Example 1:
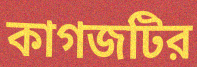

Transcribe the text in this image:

কাগজটির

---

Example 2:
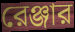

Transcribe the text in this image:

রেঞ্জার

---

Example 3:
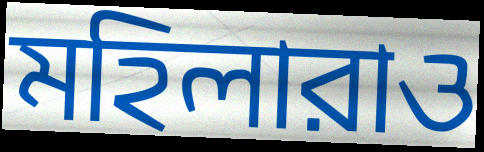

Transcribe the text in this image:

মহিলারাও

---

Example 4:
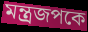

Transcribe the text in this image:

মন্ত্রজপকে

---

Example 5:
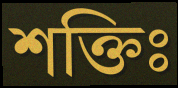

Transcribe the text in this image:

শক্তিঃ